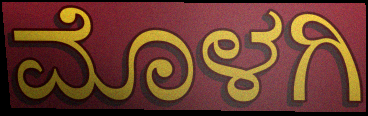
ಮೊಳಗಿ